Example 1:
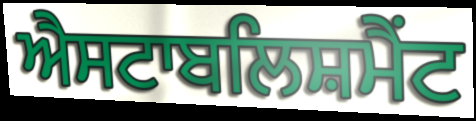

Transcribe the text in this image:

ਐਸਟਾਬਲਿਸ਼ਮੈਂਟ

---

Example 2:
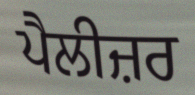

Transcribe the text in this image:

ਪੈਲੀਜ਼ਰ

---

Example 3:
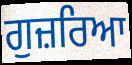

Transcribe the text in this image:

ਗੁਜ਼ਰਿਆ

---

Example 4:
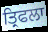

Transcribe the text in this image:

ਤ੍ਰਿਫਲਾ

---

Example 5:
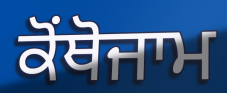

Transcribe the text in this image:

ਕੋਂਥੋਜਾਮ